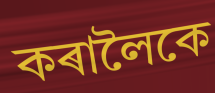
কৰালৈকে